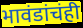
भावंडांचंही